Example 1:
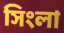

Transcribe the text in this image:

সিংলা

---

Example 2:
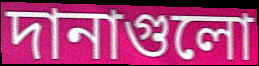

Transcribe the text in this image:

দানাগুলো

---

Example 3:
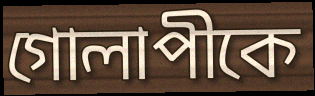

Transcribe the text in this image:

গোলাপীকে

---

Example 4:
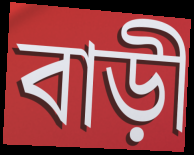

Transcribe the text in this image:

বাড়ী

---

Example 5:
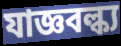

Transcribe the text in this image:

যাজ্ঞবল্ক্য